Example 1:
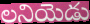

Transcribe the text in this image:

లనియెడు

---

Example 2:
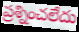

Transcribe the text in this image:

ప్రశ్నించలేదు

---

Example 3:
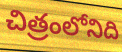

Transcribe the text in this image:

చిత్రంలోనిది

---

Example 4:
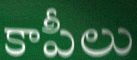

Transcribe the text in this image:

కాపీలు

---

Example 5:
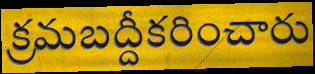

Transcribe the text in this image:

క్రమబద్దీకరించారు